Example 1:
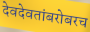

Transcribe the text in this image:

देवदेवतांबरोबरच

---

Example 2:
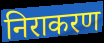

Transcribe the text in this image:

निराकरण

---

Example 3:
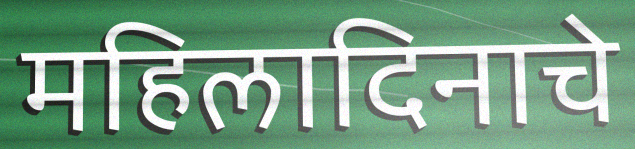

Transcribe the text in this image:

महिलादिनाचे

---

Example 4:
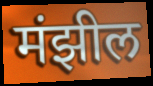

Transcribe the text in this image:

मंझील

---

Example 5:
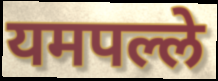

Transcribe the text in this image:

यमपल्ले